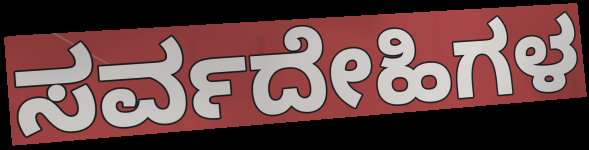
ಸರ್ವದೇಹಿಗಳ